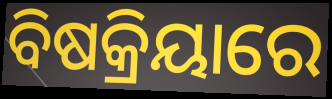
ବିଷକ୍ରିୟାରେ